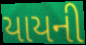
યાયની